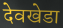
देवखेडा